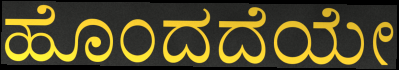
ಹೊಂದದೆಯೇ